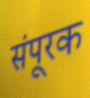
संपूरक